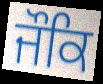
ਜੌਕਿ